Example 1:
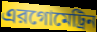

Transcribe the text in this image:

এরগোমেট্রিন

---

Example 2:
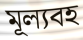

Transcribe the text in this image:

মূল্যবহ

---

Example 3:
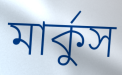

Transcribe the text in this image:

মার্কুস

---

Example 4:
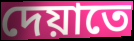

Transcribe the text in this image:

দেয়াতে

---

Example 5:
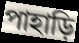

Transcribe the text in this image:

পাহাড়ি